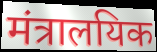
मंत्रालयिक